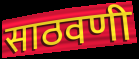
साठवणी